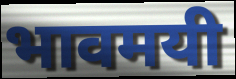
भावमयी